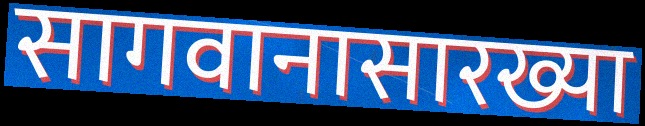
सागवानासारख्या